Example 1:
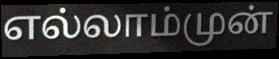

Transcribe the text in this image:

எல்லாம்முன்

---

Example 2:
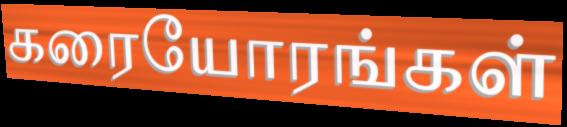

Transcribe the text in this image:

கரையோரங்கள்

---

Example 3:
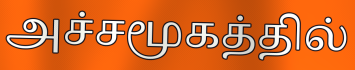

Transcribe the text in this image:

அச்சமூகத்தில்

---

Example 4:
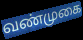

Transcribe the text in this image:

வண்முகை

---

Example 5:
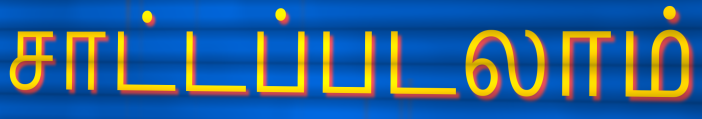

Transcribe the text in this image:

சாட்டப்படலாம்